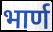
भार्ण